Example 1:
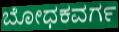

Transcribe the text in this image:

ಬೋಧಕವರ್ಗ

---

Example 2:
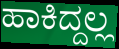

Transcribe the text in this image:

ಹಾಕಿದ್ದಲ್ಲ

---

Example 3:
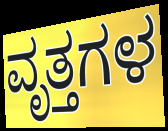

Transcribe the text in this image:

ವೃತ್ತಗಳ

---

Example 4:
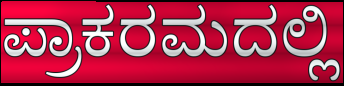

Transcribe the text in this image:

ಪ್ರಾಕರಮದಲ್ಲಿ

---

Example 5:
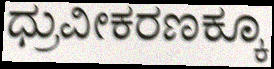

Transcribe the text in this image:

ಧ್ರುವೀಕರಣಕ್ಕೂ